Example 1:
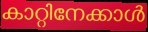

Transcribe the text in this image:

കാറ്റിനേക്കാൾ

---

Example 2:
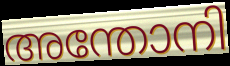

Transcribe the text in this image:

അന്തോനി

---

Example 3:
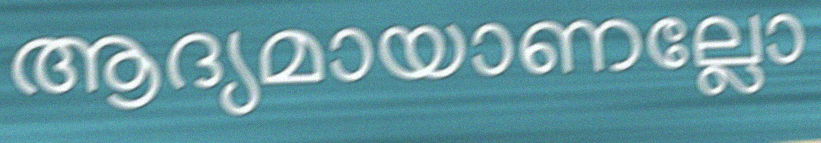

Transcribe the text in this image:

ആദ്യമായാണല്ലോ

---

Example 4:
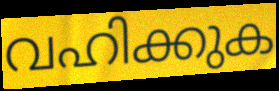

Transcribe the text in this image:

വഹിക്കുക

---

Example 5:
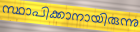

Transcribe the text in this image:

സ്ഥാപിക്കാനായിരുന്നു